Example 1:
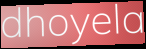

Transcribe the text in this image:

dhoyela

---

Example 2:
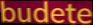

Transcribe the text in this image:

budete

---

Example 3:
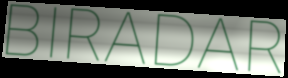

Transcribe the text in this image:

BIRADAR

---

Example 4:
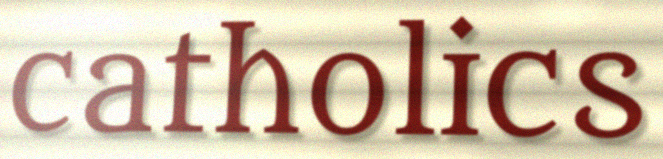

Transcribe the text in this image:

catholics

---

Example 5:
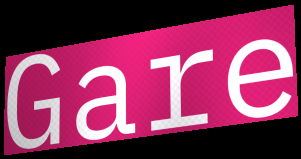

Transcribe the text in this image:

Gare